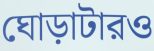
ঘোড়াটারও